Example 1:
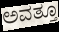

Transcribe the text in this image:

ಅವತ್ತೂ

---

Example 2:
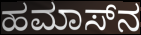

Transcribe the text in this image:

ಹಮಾಸ್‌ನ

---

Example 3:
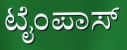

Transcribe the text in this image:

ಟೈಂಪಾಸ್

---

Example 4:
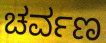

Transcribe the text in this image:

ಚರ್ವಣ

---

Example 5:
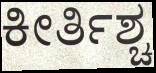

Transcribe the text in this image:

ಕೀರ್ತಿಶ್ಚ